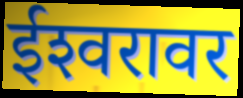
ईश्‍वरावर